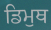
ਡਿਮੁਥ